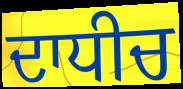
ਦਾਧੀਚ